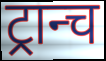
ट्रान्च